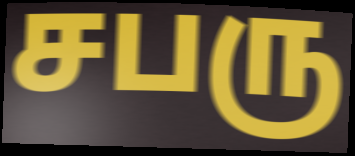
சபரு